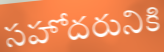
సహోదరునికి